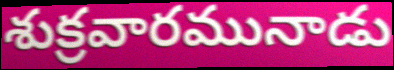
శుక్రవారమునాడు